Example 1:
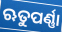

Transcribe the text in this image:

ଋତୁପର୍ଣ୍ଣା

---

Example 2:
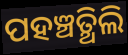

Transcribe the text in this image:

ପହଞ୍ଚତ୍ଥିଲି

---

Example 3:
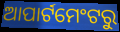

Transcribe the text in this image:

ଆପାର୍ଟମେଂଟରୁ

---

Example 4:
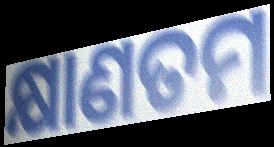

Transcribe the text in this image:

କ୍ଷାଣତମ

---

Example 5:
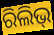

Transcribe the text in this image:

ରିଲିଭ୍